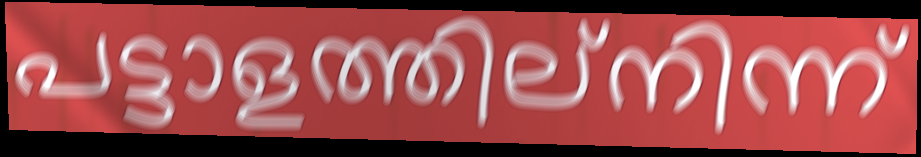
പട്ടാളത്തില്നിന്ന്